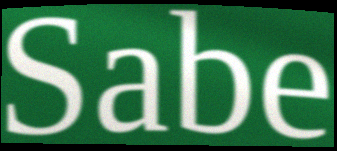
Sabe